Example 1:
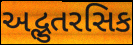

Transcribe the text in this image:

અદ્ભુતરસિક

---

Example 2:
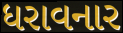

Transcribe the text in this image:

ધરાવનાર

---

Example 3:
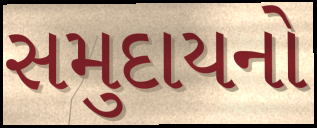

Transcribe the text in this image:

સમુદાયનો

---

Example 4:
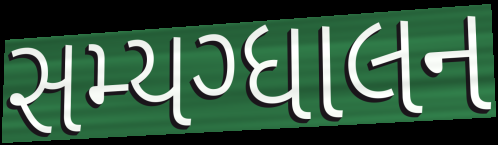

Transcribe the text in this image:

સમ્યગ્ધાલન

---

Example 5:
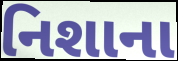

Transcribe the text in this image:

નિશાના